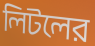
লিটলের